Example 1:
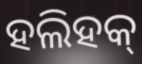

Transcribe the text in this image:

ହଲିହକ୍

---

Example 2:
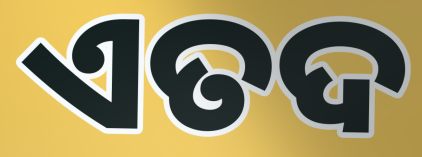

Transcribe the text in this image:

ଏତଦ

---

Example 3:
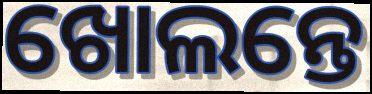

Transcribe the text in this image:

ଖୋଲନ୍ତେ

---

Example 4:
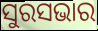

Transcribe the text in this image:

ସୁରସଭାର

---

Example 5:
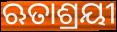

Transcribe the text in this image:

ଋତାଶ୍ରୟୀ